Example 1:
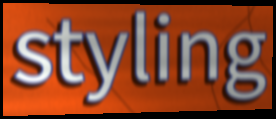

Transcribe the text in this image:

styling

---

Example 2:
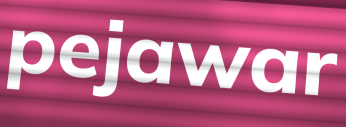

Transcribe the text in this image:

pejawar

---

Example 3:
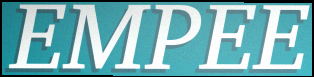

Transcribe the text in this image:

EMPEE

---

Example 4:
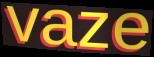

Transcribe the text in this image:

vaze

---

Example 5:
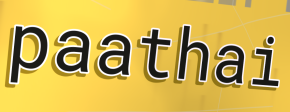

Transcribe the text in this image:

paathai